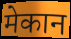
मेकान